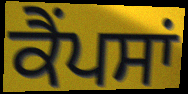
ਕੈਂਪਸਾਂ